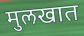
मुलखात